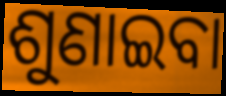
ଶୁଣାଇବା